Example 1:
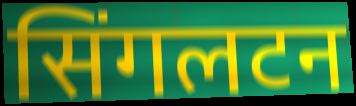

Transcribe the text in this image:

सिंगलटन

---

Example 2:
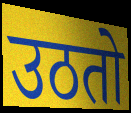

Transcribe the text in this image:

उठतो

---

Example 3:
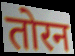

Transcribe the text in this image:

तोरन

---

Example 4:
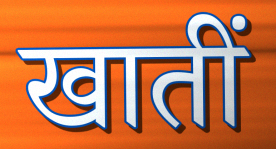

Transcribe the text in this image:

खातीं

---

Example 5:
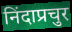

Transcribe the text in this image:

निंदाप्रचुर